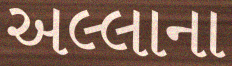
અલ્લાના